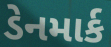
ડેનમાર્ક